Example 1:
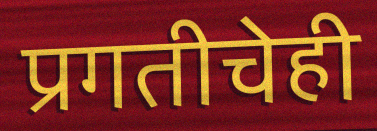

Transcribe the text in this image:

प्रगतीचेही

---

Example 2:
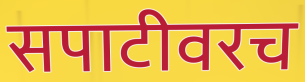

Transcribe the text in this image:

सपाटीवरच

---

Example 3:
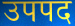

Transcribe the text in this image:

उपपद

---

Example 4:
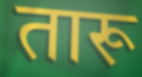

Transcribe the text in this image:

तारू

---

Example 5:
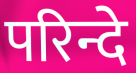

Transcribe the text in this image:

परिन्दे